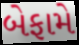
બેફામે